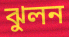
ঝুলন